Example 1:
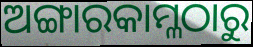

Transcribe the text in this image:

ଅଙ୍ଗାରକାମ୍ଳଠାରୁ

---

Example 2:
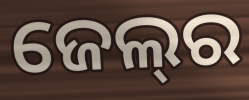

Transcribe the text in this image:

ଜେଲ୍‍ର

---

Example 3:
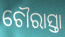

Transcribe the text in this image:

ଚୌରାସ୍ତା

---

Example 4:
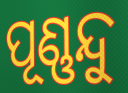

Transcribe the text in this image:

ପୂଣ୍ଣନ୍ଦୁ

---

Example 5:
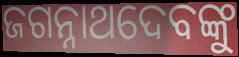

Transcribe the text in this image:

ଜଗନ୍ନାଥଦେବଙ୍କୁ